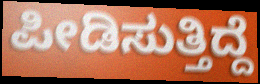
ಪೀಡಿಸುತ್ತಿದ್ದೆ